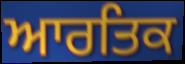
ਆਰਤਿਕ